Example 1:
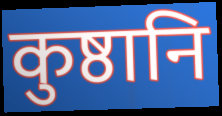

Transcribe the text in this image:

कुष्ठानि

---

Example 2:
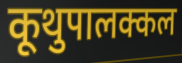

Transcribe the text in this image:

कूथुपालक्कल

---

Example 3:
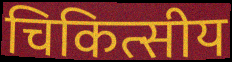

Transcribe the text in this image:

चिकित्सीय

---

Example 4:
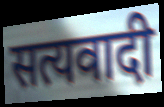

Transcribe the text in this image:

सत्यवादी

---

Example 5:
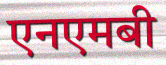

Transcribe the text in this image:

एनएमबी